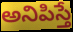
అనిపిస్తే